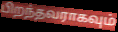
பிறந்தவராகவும்